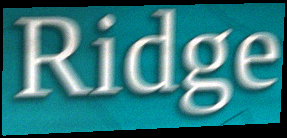
Ridge